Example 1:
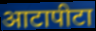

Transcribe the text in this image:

आटापीटा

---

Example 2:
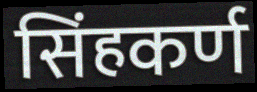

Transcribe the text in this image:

सिंहकर्ण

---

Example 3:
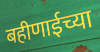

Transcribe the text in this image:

बहीणाईच्या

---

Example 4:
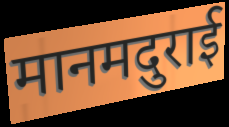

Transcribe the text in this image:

मानमदुराई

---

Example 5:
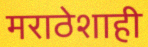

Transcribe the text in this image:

मराठेशाही